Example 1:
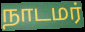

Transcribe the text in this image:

நாடமர்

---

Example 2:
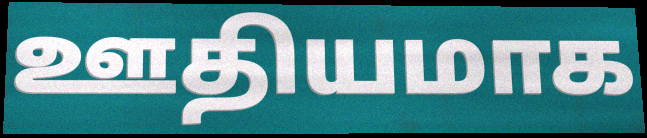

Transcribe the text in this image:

ஊதியமாக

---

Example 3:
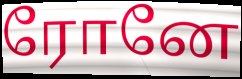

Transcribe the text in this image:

ரோனே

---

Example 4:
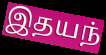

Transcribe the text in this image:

இதயந்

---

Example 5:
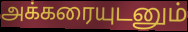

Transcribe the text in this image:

அக்கரையுடனும்